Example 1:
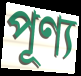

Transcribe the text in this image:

পূণ্য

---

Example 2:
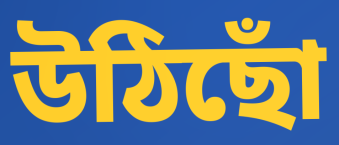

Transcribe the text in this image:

উঠিছোঁ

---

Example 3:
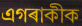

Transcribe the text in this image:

এগৰাকীক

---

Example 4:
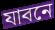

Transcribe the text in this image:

যাবনে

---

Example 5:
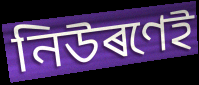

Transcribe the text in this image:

নিউৰণেই